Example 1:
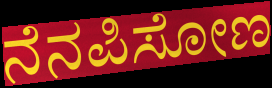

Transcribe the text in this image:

ನೆನಪಿಸೋಣ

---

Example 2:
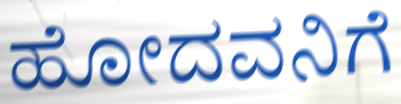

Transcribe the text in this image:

ಹೋದವನಿಗೆ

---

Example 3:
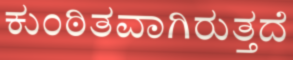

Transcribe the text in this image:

ಕುಂಠಿತವಾಗಿರುತ್ತದೆ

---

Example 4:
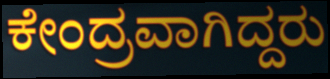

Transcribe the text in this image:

ಕೇಂದ್ರವಾಗಿದ್ದರು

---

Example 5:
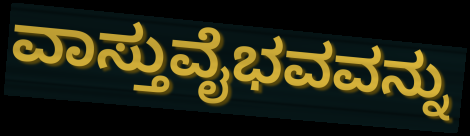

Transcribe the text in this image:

ವಾಸ್ತುವೈಭವವನ್ನು